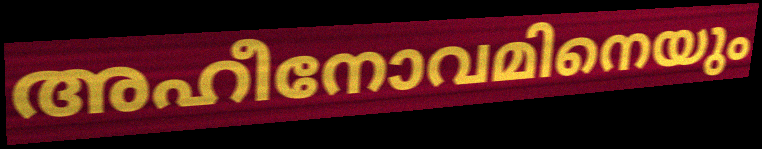
അഹീനോവമിനെയും